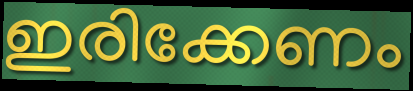
ഇരിക്കേണം